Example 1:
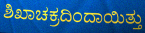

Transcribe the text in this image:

ಶಿಖಾಚಕ್ರದಿಂದಾಯಿತ್ತು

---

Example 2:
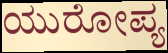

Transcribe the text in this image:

ಯುರೋಪ್ಯ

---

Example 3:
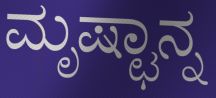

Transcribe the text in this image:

ಮೃಷ್ಟಾನ್ನ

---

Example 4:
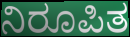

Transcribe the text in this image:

ನಿರೂಪಿತ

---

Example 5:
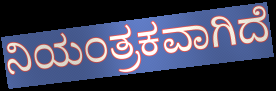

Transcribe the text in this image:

ನಿಯಂತ್ರಕವಾಗಿದೆ